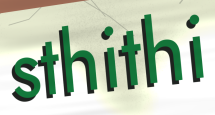
sthithi